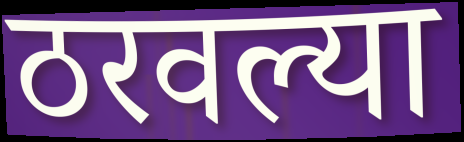
ठरवल्या